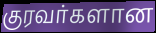
குரவர்களான